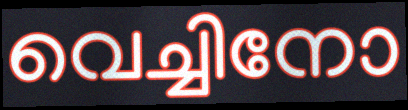
വെച്ചിനോ